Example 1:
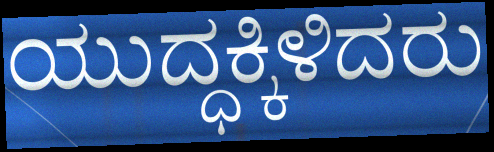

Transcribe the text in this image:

ಯುದ್ಧಕ್ಕಿಳಿದರು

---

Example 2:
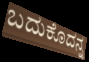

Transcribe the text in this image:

ಬದುಕೊದನ್ನ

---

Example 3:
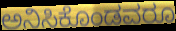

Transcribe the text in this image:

ಅನಿಸಿಕೊಂಡವರೂ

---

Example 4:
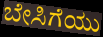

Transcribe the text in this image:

ಬೇಸಿಗೆಯು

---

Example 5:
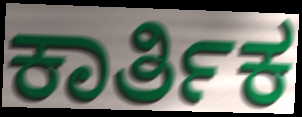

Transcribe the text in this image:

ಕಾರ್ತಿಕ